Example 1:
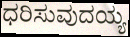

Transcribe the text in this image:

ಧರಿಸುವುದಯ್ಯ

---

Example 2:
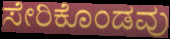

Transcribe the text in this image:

ಸೇರಿಕೊಂಡವು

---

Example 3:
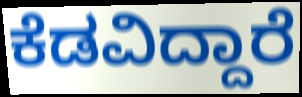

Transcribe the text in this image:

ಕೆಡವಿದ್ದಾರೆ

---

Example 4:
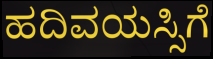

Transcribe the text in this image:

ಹದಿವಯಸ್ಸಿಗೆ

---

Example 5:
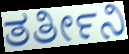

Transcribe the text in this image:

ತರ್ತೀನಿ